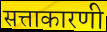
सत्ताकारणी